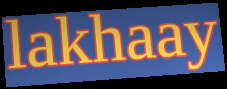
lakhaay